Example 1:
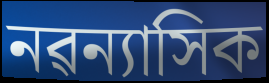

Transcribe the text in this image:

নৱন্যাসিক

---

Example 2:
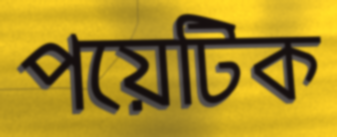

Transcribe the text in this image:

পয়েটিক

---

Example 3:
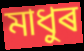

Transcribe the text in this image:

মাধুৰ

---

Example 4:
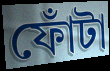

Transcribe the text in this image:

ফোঁটা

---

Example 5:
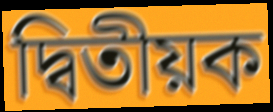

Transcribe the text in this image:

দ্বিতীয়ক